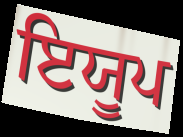
ਇਯੂਪ